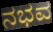
ನಭವ